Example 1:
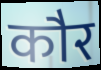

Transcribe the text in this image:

कौर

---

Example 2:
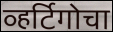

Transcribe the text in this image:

व्हर्टिगोचा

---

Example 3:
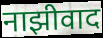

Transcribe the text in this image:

नाझीवाद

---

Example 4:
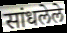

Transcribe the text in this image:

सांधलेले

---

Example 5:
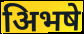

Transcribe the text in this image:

अिभषे